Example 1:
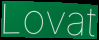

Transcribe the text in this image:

Lovat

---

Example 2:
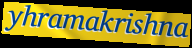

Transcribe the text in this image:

yhramakrishna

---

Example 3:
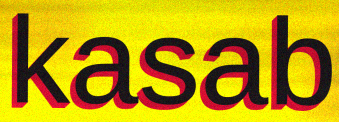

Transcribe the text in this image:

kasab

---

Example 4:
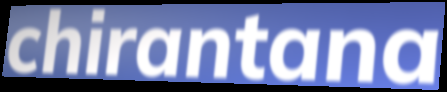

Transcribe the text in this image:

chirantana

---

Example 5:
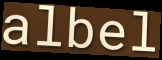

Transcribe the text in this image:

albel